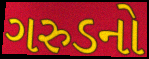
ગરુડનો